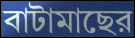
বাটামাছের